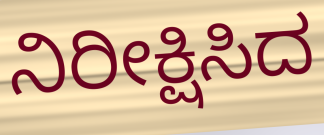
ನಿರೀಕ್ಷಿಸಿದ